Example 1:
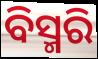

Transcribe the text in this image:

ବିସ୍ମରି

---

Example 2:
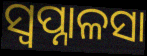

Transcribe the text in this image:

ସ୍ୱପ୍ନାଳସା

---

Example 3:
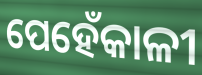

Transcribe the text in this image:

ପେହେଁକାଳୀ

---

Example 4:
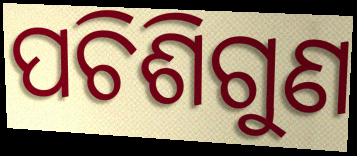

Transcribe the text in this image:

ପଚିଶିଗୁଣ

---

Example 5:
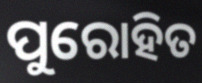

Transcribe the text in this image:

ପୁରୋହିତ